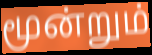
மூன்றும்